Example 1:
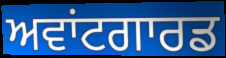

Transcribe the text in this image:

ਅਵਾਂਟਗਾਰਡ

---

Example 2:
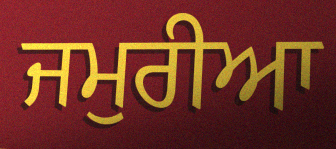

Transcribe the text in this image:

ਜਮੁਰੀਆ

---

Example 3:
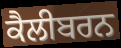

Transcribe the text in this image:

ਕੈਲੀਬਰਨ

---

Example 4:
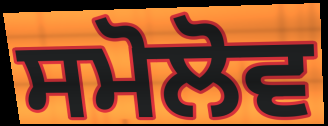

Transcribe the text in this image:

ਸਮੋਲੋਵ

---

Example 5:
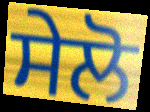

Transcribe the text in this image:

ਸੇਲੋ